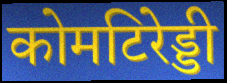
कोमटिरेड्डी